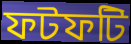
ফটফটি